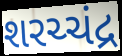
શરચ્ચંદ્ર